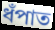
ধঁপাত